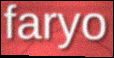
faryo